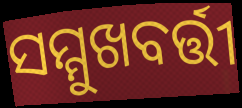
ସମ୍ମୁଖବର୍ତ୍ତୀ